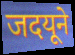
जदयूने